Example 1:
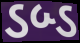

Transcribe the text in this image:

ડબ્ડ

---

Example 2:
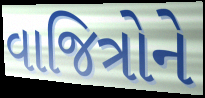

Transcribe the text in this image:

વાજિત્રોને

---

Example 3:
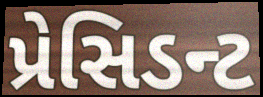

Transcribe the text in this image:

પ્રેસિડન્ટ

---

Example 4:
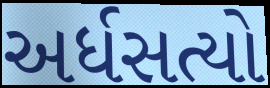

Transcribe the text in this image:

અર્ધસત્યો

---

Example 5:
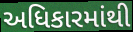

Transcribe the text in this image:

અધિકારમાંથી